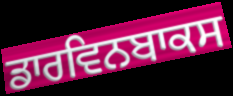
ਡਾਰਵਿਨਬਾਕਸ